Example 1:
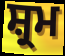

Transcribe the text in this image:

ਸ਼੍ਰਮ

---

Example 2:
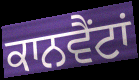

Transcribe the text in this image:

ਕਾਨਵੈਂਟਾਂ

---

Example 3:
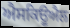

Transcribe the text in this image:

ਐਸਕਿਊਐਲ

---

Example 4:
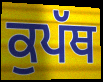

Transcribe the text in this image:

ਕੁਪੱਥ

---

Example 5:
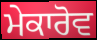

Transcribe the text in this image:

ਮੇਕਾਰੋਵ